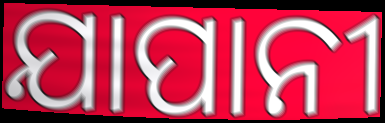
ଯାପାନୀ